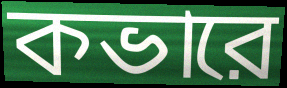
কভারে